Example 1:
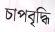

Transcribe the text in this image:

চাপবৃদ্ধি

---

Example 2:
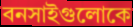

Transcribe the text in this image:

বনসাইগুলোকে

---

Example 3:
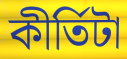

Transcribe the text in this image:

কীর্তিটা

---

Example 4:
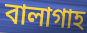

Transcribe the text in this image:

বালাগাহ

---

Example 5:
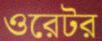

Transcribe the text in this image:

ওরেটর